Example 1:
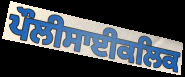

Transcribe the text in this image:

ਪੌਲੀਸਾਈਕਲਿਕ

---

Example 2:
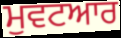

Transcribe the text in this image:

ਮੁਵਟਆਰ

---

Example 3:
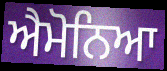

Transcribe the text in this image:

ਐਮੋਨਿਆ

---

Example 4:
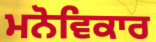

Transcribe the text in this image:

ਮਨੋਵਿਕਾਰ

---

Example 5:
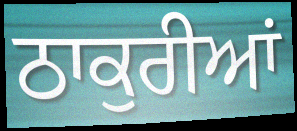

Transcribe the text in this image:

ਠਾਕੁਰੀਆਂ